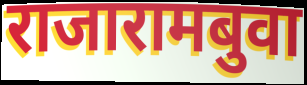
राजारामबुवा